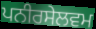
ਪਨੀਰਸੇਲਵਮ